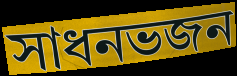
সাধনভজন